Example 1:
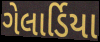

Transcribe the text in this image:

ગેલાર્ડિયા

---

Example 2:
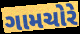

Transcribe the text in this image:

ગામચોરે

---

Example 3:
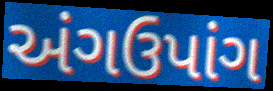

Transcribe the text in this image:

અંગઉપાંગ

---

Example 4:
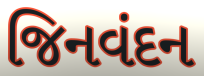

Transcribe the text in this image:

જિનવંદન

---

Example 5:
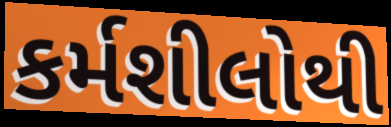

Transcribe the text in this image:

કર્મશીલોથી